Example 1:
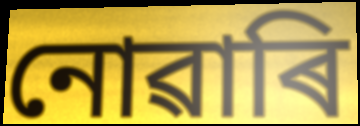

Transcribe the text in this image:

নোৱাৰি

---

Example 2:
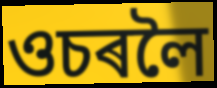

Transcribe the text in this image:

ওচৰলৈ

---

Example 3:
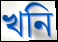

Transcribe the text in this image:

খনি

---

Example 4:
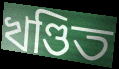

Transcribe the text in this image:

খণ্ডিত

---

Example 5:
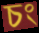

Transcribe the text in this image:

চং